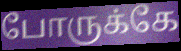
போருக்கே